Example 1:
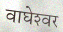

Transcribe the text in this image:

वाघेश्वर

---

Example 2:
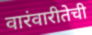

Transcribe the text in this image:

वारंवारीतेची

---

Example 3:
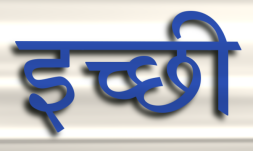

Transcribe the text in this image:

इच्छी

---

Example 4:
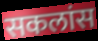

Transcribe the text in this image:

सकलांस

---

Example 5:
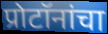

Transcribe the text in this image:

प्रोटॉनांचा